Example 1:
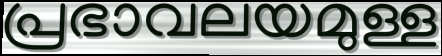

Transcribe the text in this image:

പ്രഭാവലയമുള്ള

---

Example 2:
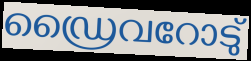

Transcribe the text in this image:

ഡ്രൈവറോടു്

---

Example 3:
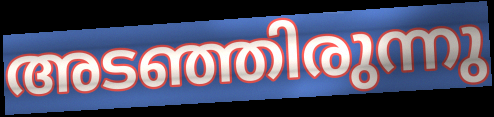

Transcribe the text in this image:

അടഞ്ഞിരുന്നു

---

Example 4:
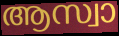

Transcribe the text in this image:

ആസ്വാ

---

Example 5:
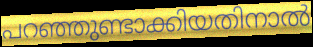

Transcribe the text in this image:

പറഞ്ഞുണ്ടാക്കിയതിനാൽ